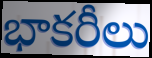
భాకరీలు